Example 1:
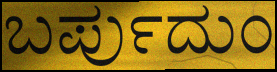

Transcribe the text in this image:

ಬರ್ಪುದುಂ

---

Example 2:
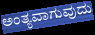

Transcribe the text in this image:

ಅಂತ್ಯವಾಗುವುದು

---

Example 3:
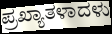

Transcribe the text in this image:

ಪ್ರಖ್ಯಾತಳಾದಳು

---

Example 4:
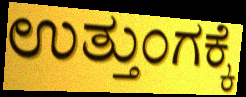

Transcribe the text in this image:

ಉತ್ತುಂಗಕ್ಕೆ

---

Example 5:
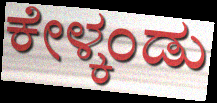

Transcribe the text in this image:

ಕೇಳ್ಕಂಡು